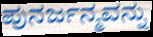
ಪುನರ್ಜನ್ಮವನ್ನು